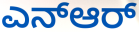
ಎನ್ಆರ್